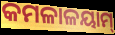
କମଳାଳୟାମ୍